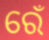
ରେଁ